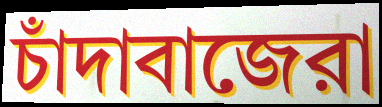
চাঁদাবাজেরা